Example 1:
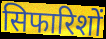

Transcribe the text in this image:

सिफारिशों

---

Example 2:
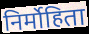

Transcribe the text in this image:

निर्मोहिता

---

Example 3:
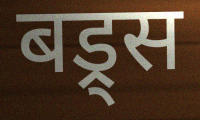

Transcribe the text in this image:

बड्र्स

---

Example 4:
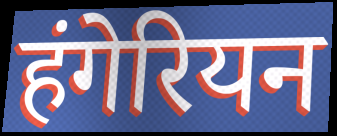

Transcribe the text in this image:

हंगेरियन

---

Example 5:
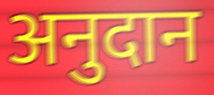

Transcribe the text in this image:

अनुदान